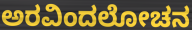
ಅರವಿಂದಲೋಚನ